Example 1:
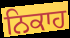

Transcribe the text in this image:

ਨਿਕਾਹ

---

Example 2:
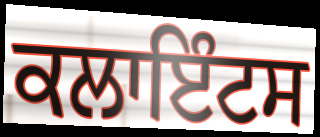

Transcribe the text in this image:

ਕਲਾਇੰਟਸ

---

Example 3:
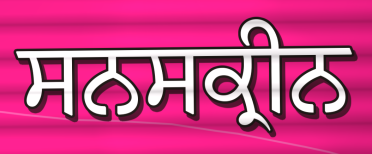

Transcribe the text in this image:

ਸਨਸਕ੍ਰੀਨ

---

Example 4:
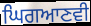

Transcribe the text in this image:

ਘਿਗਆਣਵੀ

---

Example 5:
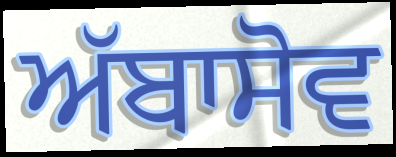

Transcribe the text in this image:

ਅੱਬਾਸੋਵ